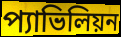
প্যাভিলিয়ন